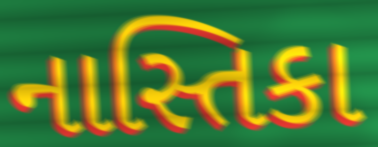
નાસ્તિકા